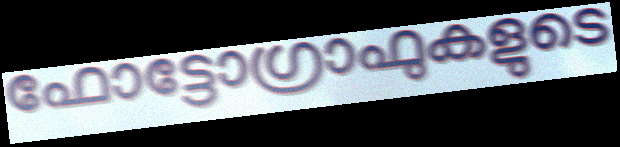
ഫോട്ടോഗ്രാഫുകളുടെ